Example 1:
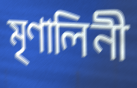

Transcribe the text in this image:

মৃণালিনী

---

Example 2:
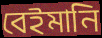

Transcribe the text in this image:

বেইমানি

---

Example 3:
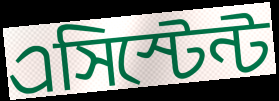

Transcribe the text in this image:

এসিস্টেন্ট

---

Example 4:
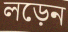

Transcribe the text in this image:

লড়েন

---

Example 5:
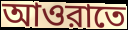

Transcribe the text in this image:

আওরাতে